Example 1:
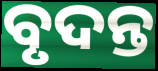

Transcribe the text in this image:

ବୃଦନ୍ତ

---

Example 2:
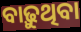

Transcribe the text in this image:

ବାଢ଼ୁଥିବା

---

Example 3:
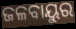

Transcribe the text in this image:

ଜଳବାୟୁର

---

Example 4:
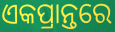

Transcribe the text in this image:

ଏକପ୍ରାନ୍ତରେ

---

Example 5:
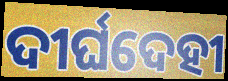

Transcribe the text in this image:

ଦୀର୍ଘଦେହୀ